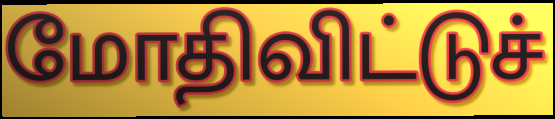
மோதிவிட்டுச்